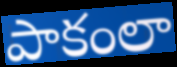
పాకంలా